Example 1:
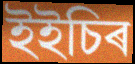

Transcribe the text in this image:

ইইচিৰ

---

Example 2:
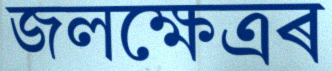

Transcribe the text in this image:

জলক্ষেত্ৰৰ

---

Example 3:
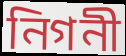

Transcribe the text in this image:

নিগনী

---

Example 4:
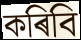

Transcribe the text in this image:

কৰিবি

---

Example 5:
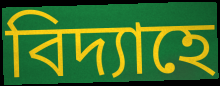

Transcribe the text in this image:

বিদ্যাহে